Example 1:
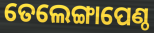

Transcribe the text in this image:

ତେଲେଙ୍ଗାପେଣ୍ଠ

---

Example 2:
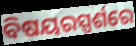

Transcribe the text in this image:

ବିଷୟରସ୍ପର୍ଶରେ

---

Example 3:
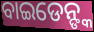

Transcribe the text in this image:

ବାଇଡେନ୍ଙ୍କ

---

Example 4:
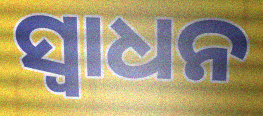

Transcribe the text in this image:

ସ୍ଵାଧନ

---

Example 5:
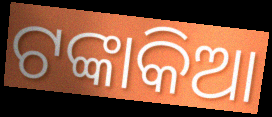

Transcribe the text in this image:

ଟଙ୍କାକିଆ